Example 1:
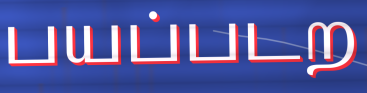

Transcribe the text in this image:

பயப்படற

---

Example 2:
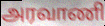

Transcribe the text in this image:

அரவாணி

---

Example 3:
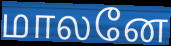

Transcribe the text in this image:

மாலனே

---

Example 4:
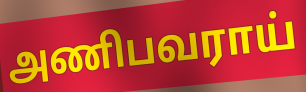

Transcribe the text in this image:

அணிபவராய்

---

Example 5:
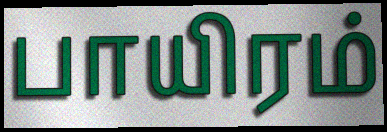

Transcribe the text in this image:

பாயிரம்